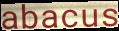
abacus